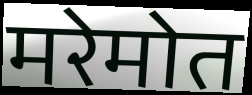
मरेमोत